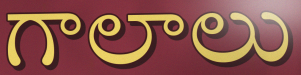
గాలాలు